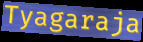
Tyagaraja